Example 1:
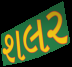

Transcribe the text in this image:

શલર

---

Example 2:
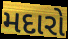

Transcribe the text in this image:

મદારો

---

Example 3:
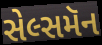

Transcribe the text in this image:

સેલ્સમૅન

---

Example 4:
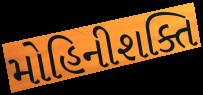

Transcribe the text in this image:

મોહિનીશક્તિ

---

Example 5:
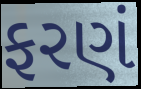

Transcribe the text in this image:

ફરણં